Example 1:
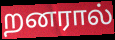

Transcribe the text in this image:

றனரால்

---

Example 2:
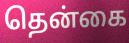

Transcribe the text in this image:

தென்கை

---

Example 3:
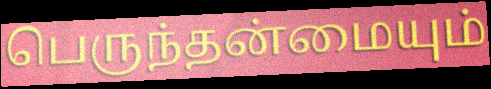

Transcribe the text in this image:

பெருந்தன்மையும்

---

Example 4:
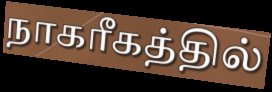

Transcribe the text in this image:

நாகரீகத்தில்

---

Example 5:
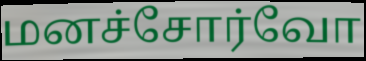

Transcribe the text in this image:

மனச்சோர்வோ